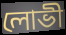
লোভী